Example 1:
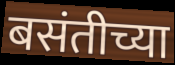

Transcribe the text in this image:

बसंतीच्या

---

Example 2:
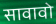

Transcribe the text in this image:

सावावो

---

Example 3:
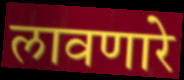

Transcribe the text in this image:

लावणारे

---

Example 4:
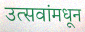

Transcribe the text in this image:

उत्सवांमधून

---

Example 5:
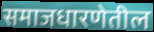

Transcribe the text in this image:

समाजधारणेतील